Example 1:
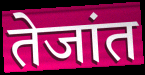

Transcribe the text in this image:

तेजांत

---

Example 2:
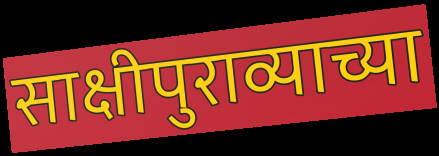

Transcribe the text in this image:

साक्षीपुराव्याच्या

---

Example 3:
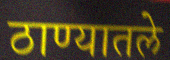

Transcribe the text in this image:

ठाण्यातले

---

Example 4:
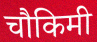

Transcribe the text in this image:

चौकिमी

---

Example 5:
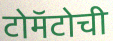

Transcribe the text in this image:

टोमॅटोची